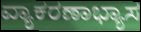
ವ್ಯಾಕರಣಾಭ್ಯಾಸ